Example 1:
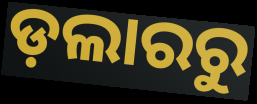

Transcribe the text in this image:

ଡ଼ଲାରରୁ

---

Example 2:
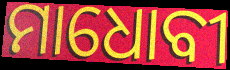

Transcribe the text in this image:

ମାଧୋବୀ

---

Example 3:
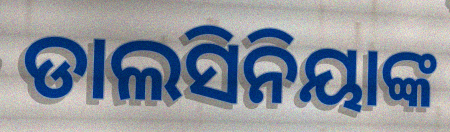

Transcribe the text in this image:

ଡାଲସିନିୟାଙ୍କ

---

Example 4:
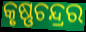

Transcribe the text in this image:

କୃଷ୍ଣଚନ୍ଦ୍ରର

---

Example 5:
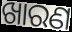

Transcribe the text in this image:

ଖାରଣ